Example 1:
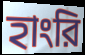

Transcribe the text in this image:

হাংরি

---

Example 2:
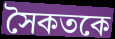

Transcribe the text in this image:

সৈকতকে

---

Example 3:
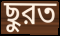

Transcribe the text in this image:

ছুরত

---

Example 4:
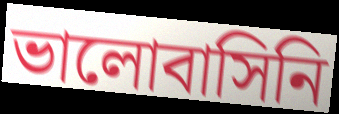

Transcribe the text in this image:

ভালোবাসিনি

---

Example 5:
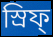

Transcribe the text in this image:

স্রিফ্